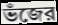
ভঁজের